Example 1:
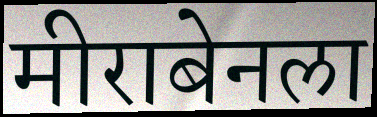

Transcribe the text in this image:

मीराबेनला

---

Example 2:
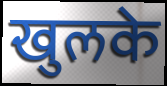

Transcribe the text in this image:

खुलके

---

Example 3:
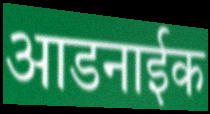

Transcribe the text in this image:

आडनाईक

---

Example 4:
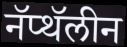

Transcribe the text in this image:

नॅप्थॅलीन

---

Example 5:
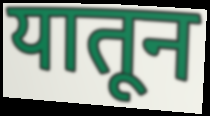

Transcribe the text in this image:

यातून